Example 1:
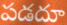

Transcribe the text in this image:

పడదూ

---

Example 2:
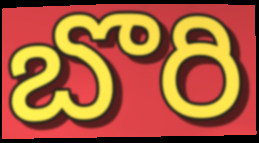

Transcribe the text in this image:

బొరి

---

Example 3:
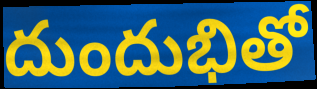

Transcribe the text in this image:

దుందుభితో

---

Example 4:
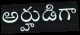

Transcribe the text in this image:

అర్హుడిగా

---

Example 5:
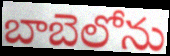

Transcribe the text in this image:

బాబెలోను